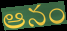
ఆనం